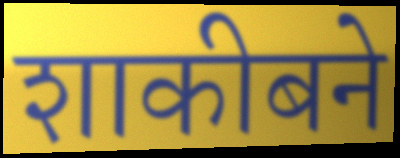
शाकीबने